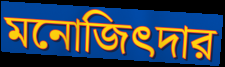
মনোজিৎদার